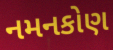
નમનકોણ